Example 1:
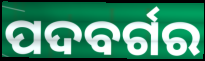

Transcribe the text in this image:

ପଦବର୍ଗର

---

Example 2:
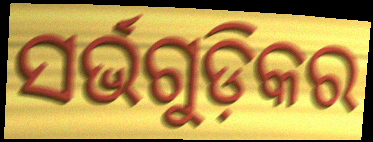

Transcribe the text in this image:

ସର୍ଭଗୁଡ଼ିକର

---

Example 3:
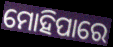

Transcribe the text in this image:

ମୋହିପାରେ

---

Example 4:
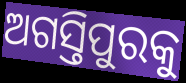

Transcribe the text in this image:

ଅଗସ୍ତିପୁରକୁ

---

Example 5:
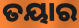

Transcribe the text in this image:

ତୟାର